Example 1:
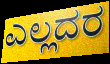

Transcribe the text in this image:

ಎಲ್ಲದರ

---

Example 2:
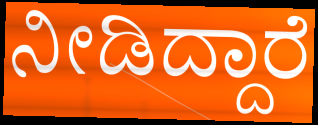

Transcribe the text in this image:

ನೀಡಿದ್ದಾರೆ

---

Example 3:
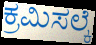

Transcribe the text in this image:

ಕ್ರಮಿಸಲ್ಕೆ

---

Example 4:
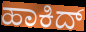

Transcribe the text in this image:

ಹಾಕಿದ್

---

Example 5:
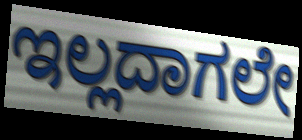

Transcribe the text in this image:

ಇಲ್ಲದಾಗಲೇ